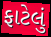
ફાટેલું